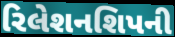
રિલેશનશિપની